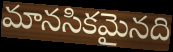
మానసికమైనది